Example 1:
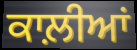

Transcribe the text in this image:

ਕਾਲ਼ੀਆਂ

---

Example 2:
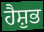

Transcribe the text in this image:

ਹੈਸ਼ੁਭ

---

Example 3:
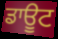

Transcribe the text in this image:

ਡਾਊਟ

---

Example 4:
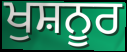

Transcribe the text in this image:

ਖੁਸ਼ਨੂਰ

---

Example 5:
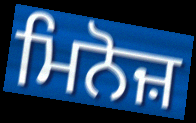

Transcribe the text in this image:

ਮਿਨੋਜ਼